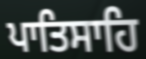
ਪਾਤਿਸਾਹਿ